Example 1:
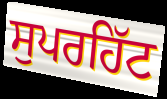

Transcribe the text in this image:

ਸੁਪਰਹਿੱਟ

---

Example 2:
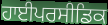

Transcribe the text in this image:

ਹਾਈਪਰਸੀਡਿਕ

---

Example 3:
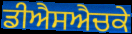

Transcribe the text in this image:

ਡੀਐਸਐਚਕੇ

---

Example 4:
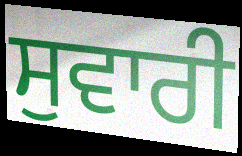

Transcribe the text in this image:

ਸੁਵਾਰੀ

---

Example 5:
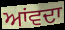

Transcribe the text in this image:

ਆਂਵਦਾ